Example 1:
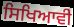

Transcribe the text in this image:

ਸਿਖਿਆਵੀ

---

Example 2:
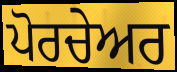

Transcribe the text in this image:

ਪੋਰਚੇਅਰ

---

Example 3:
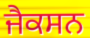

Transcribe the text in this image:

ਜੈਕਸਨ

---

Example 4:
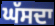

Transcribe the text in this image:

ਘੱਸਦਾ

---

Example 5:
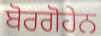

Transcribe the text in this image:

ਬੋਰਗੋਹੇਨ